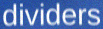
dividers